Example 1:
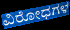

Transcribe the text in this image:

ವಿರೋಧಗಳ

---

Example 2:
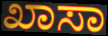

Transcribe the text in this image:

ಖಾಸಾ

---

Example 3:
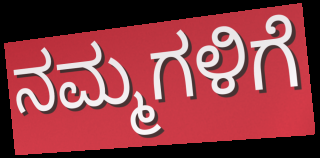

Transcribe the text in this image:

ನಮ್ಮಗಳಿಗೆ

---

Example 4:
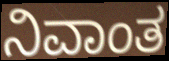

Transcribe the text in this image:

ನಿವಾಂತ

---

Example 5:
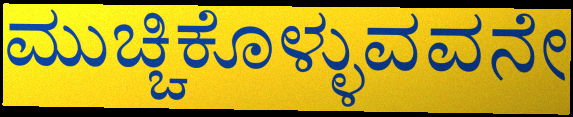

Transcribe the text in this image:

ಮುಚ್ಚಿಕೊಳ್ಳುವವನೇ